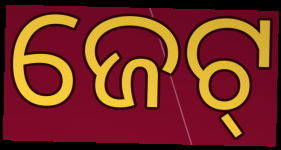
ଜେଟ୍